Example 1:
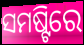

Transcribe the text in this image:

ସମଷ୍ଟିରେ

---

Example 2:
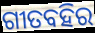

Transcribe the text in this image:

ଗୀତବହିର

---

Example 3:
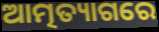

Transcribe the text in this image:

ଆତ୍ମତ୍ୟାଗରେ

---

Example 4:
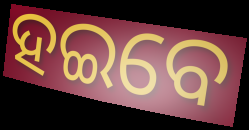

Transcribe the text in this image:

ହଇବେ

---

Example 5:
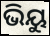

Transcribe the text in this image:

ଭିୟୁ